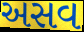
અસવ